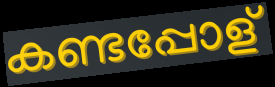
കണ്ടപ്പോള്